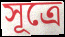
সূত্ৰে